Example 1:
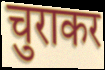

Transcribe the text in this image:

चुराकर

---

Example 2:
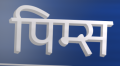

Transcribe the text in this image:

पिम्स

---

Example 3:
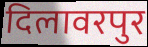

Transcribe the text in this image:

दिलावरपुर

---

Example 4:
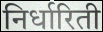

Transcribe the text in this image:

निर्धारिती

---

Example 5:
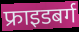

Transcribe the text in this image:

फ्राइडबर्ग